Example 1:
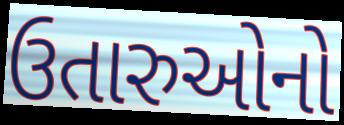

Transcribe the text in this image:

ઉતારુઓનો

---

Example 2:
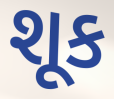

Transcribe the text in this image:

શૂક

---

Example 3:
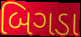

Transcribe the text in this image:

બિગડા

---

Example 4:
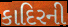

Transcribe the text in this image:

કાદિરની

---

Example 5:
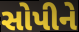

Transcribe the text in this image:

સોપીને